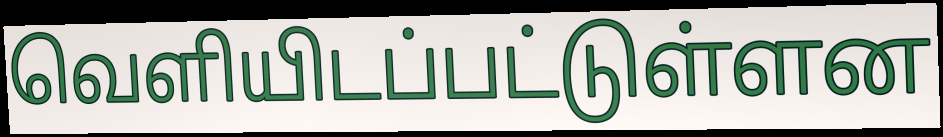
வெளியிடப்பட்டுள்ளன